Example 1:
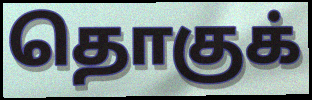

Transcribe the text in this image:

தொகுக்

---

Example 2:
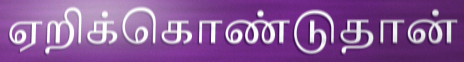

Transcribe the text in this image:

ஏறிக்கொண்டுதான்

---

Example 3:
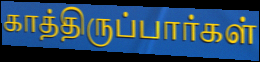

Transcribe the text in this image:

காத்திருப்பார்கள்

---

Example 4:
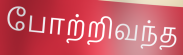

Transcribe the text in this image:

போற்றிவந்த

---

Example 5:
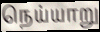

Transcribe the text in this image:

நெய்யாறு